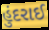
હુંદરાઈ